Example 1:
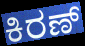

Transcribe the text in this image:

ಕಿರಣ್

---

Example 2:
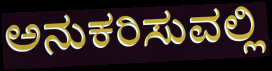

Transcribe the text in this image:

ಅನುಕರಿಸುವಲ್ಲಿ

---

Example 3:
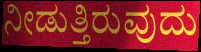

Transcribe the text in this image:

ನೀಡುತ್ತಿರುವುದು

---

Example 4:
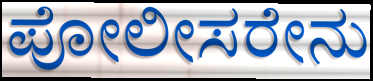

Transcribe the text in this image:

ಪೋಲೀಸರೇನು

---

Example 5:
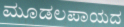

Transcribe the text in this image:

ಮೂಡಲಪಾಯದ